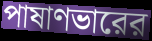
পাষাণভারের